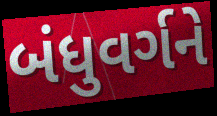
બંધુવર્ગને